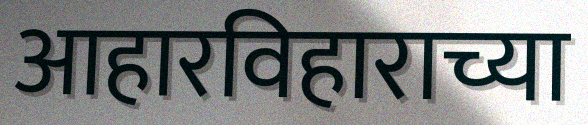
आहारविहाराच्या